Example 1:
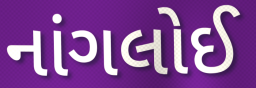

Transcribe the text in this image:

નાંગલોઈ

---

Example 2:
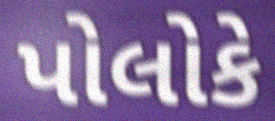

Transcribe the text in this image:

પોલોકે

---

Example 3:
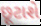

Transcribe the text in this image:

છૂટાશે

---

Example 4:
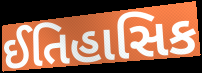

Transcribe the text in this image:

ઈતિહાસિક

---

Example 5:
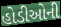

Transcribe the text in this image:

હોડીઓની